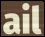
ail